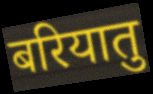
बरियातु